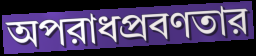
অপরাধপ্রবণতার